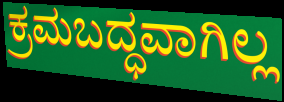
ಕ್ರಮಬದ್ಧವಾಗಿಲ್ಲ